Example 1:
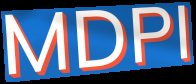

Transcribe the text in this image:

MDPI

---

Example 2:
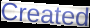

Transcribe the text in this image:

Created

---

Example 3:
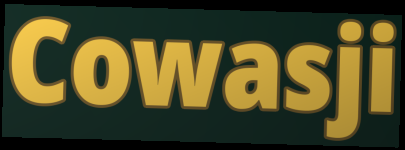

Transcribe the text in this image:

Cowasji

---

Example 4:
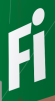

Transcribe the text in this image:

Fi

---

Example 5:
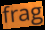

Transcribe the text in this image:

frag